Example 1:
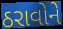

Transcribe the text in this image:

ઠરાવોને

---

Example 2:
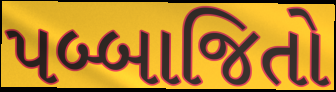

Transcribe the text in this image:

પબ્બાજિતો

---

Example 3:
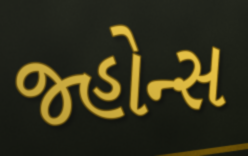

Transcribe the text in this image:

જ્હોન્સ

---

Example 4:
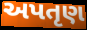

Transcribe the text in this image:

અપતૃણ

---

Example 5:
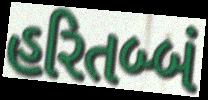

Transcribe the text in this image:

હરિતબ્બં